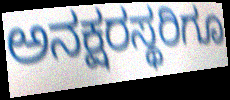
ಅನಕ್ಷರಸ್ಥರಿಗೂ